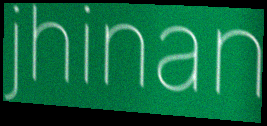
jhinan